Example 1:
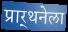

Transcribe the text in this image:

प्रार्थनेला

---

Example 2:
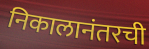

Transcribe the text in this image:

निकालानंतरची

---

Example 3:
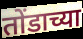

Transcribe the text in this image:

तोंडाच्या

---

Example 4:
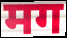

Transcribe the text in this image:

मग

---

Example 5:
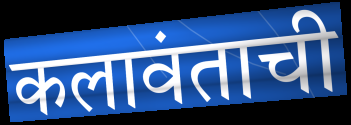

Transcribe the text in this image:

कलावंताची